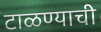
टाळण्याची